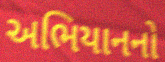
અભિયાનનો